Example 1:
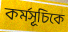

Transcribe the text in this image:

কর্মসূচিকে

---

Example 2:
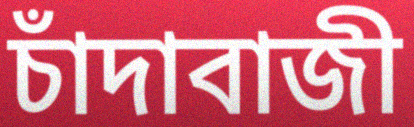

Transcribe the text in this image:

চাঁদাবাজী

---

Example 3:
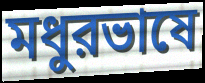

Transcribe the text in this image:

মধুরভাষে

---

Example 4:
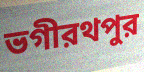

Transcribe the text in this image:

ভগীরথপুর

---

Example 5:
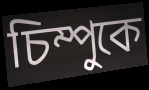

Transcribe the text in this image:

চিম্পুকে